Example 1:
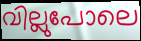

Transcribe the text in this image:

വില്ലുപോലെ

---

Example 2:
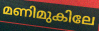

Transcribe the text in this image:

മണിമുകിലേ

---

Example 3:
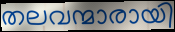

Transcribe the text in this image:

തലവന്മാരായി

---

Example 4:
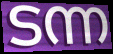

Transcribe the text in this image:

ടന്ന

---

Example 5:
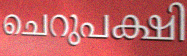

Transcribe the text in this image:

ചെറുപക്ഷി